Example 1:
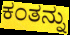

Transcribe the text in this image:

ಕಂತನ್ನು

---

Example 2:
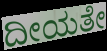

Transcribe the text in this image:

ದೀಯತೇ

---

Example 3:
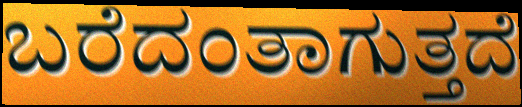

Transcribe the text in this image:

ಬರೆದಂತಾಗುತ್ತದೆ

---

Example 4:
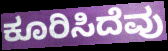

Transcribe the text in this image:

ಕೂರಿಸಿದೆವು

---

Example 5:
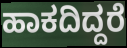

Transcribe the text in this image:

ಹಾಕದಿದ್ದರೆ